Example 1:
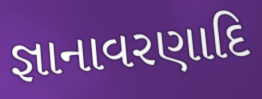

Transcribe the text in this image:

જ્ઞાનાવરણાદિ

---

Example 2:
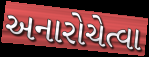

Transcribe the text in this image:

અનારોચેત્વા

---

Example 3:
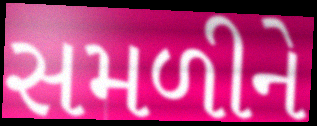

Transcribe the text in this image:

સમળીને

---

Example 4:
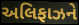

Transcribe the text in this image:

અલિફાઝને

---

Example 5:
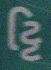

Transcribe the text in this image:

ટ્ટિ